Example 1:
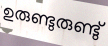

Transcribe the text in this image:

ഉരുണ്ടുരുണ്ടു്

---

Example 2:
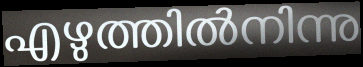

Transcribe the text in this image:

എഴുത്തിൽനിന്നു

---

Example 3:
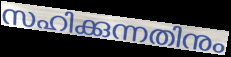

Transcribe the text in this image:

സഹിക്കുന്നതിനും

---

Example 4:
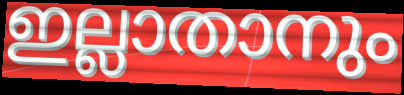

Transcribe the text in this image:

ഇല്ലാതാനും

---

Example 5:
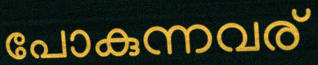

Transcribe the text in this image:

പോകുന്നവര്